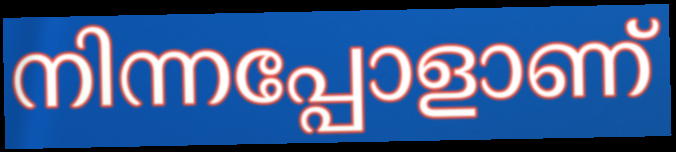
നിന്നപ്പോളാണ്